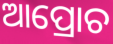
ଆପ୍ରୋଚ